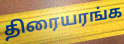
திரையரங்க